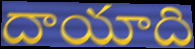
దాయాది